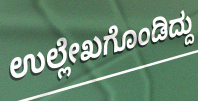
ಉಲ್ಲೇಖಗೊಂಡಿದ್ದು